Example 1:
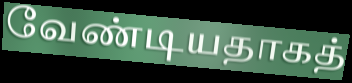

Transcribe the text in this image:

வேண்டியதாகத்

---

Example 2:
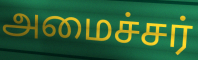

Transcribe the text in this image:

அமைச்சர்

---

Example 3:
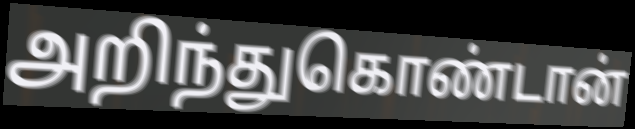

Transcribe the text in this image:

அறிந்துகொண்டான்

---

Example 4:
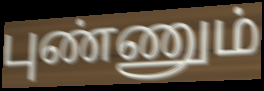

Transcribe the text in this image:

புண்ணும்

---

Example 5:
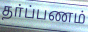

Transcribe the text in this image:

தர்ப்பணம்